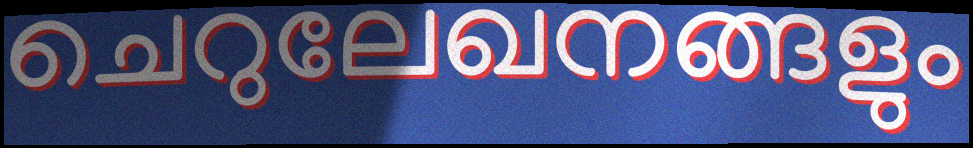
ചെറുലേഖനങ്ങളും